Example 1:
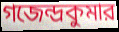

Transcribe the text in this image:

গজেন্দ্রকুমার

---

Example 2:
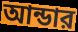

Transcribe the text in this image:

আন্ডার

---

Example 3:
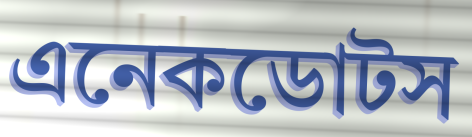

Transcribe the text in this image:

এনেকডোটস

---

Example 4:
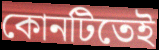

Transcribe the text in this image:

কোনটিতেই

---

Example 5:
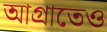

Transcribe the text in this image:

আগ্রাতেও